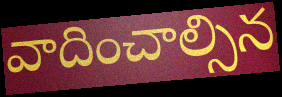
వాదించాల్సిన